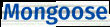
Mongoose